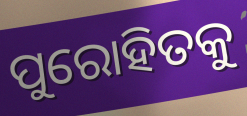
ପୁରୋହିତକୁ